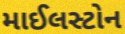
માઈલસ્ટોન